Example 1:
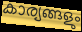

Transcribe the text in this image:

കാര്യങ്ങളും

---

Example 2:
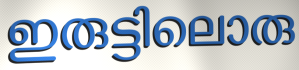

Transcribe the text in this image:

ഇരുട്ടിലൊരു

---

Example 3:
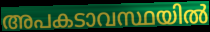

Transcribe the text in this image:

അപകടാവസ്ഥയിൽ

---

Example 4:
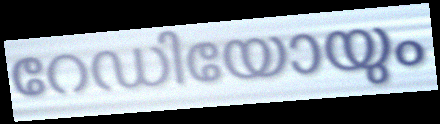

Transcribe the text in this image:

റേഡിയോയും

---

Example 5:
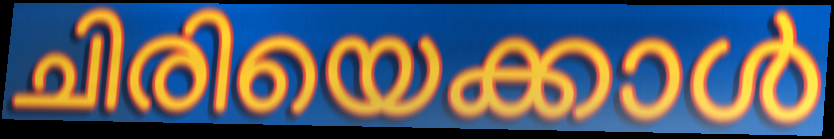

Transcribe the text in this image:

ചിരിയെക്കാൾ